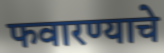
फवारण्याचे